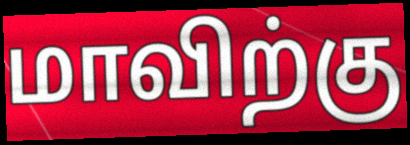
மாவிற்கு